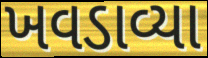
ખવડાવ્યા